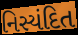
નિસ્યંદિત